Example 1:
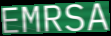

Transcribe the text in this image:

EMRSA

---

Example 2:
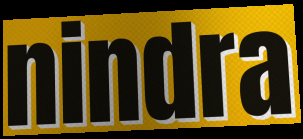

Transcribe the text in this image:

nindra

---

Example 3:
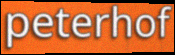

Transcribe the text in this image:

peterhof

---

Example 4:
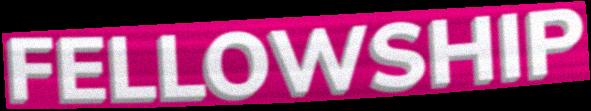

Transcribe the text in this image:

FELLOWSHIP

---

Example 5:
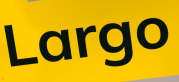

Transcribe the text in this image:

Largo